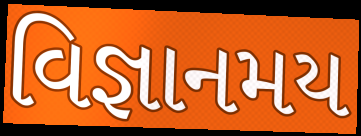
વિજ્ઞાનમય